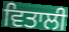
ਵਿਤਾਲੀ